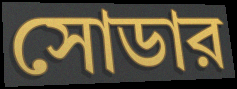
সোডার